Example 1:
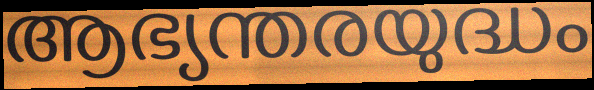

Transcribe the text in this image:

ആഭ്യന്തരയുദ്ധം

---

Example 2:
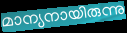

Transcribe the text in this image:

മാന്യനായിരുന്നു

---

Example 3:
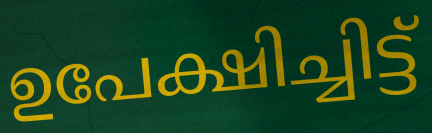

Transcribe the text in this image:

ഉപേക്ഷിച്ചിട്ട്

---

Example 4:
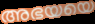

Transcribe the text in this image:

അഭയയെ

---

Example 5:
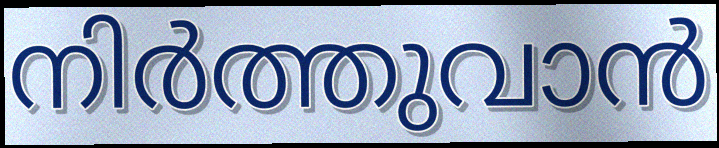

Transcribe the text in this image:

നിർത്തുവാൻ